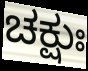
ಚಕ್ಷುಃ